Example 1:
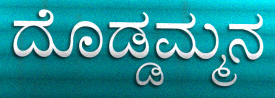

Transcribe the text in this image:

ದೊಡ್ಡಮ್ಮನ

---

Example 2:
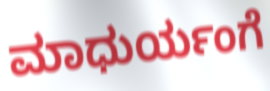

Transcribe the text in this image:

ಮಾಧುರ್ಯಂಗೆ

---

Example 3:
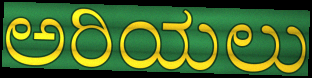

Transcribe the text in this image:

ಅರಿಯಲು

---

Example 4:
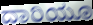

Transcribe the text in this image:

ದಾರಿಯೂ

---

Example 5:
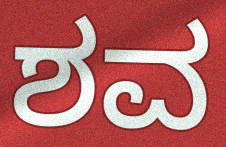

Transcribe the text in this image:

ಶವ